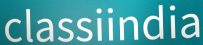
classiindia